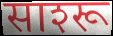
साश्रू